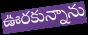
ఊరకున్నాను